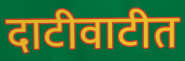
दाटीवाटीत